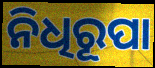
ନିଧିରୂପା